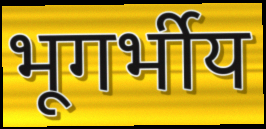
भूगर्भीय